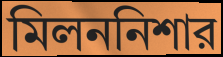
মিলননিশার